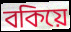
বকিয়ে